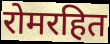
रोमरहित